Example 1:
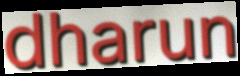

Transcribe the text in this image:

dharun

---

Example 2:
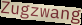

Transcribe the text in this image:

Zugzwang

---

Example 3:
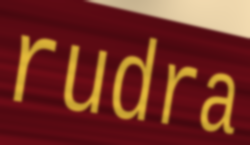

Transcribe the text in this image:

rudra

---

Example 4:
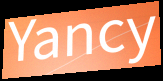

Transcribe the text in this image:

Yancy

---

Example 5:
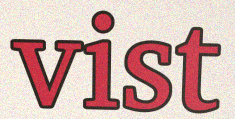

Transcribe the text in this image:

vist